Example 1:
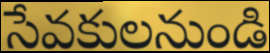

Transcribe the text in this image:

సేవకులనుండి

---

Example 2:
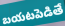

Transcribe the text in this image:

బయటపెడితే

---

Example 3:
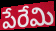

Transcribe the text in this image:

పేరేమి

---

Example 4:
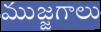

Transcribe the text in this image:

ముజ్జగాలు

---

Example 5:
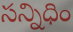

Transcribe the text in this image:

సన్నిధిం